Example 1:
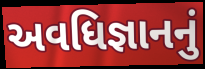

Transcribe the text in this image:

અવધિજ્ઞાનનું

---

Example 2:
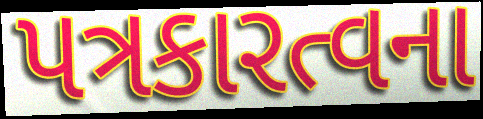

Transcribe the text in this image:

પત્રકારત્વના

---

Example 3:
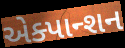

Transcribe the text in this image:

એક્પાન્શન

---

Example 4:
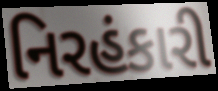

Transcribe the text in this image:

નિરહંકારી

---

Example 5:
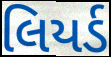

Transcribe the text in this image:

લિયર્ડ